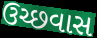
ઉચ્છવાસ